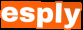
esply